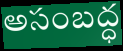
అసంబద్ధ